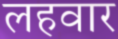
लहवार